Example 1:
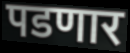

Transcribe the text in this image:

पडणार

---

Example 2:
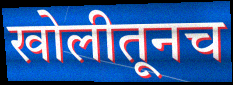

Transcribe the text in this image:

खोलीतूनच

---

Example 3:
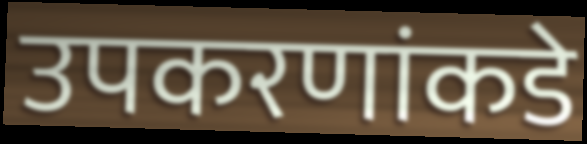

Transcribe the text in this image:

उपकरणांकडे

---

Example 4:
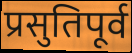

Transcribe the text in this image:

प्रसुतिपूर्व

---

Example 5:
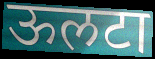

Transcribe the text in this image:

ऊलटा